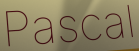
Pascal